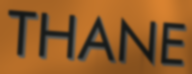
THANE